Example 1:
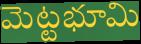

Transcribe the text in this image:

మెట్టభూమి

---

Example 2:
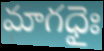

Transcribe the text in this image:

మాగధైః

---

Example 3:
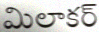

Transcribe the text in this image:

మిలాకర్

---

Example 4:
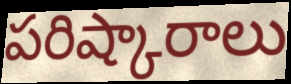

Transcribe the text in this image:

పరిష్కారాలు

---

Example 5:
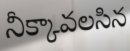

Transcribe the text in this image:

నీక్కావలసిన